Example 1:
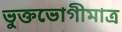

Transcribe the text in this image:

ভুক্তভোগীমাত্র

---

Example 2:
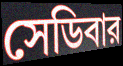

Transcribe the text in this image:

সেডিবার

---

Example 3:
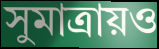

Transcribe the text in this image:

সুমাত্রায়ও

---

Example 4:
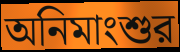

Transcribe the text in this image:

অনিমাংশুর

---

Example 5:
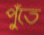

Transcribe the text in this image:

পুঁতে